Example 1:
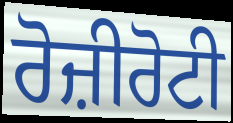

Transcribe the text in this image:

ਰੋਜ਼ੀਰੋਟੀ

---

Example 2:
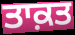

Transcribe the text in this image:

ਤਾਕ਼ਤ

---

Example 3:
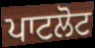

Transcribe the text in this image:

ਪਾਟਲੋਟ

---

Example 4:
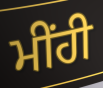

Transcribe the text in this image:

ਮੀਂਹੀ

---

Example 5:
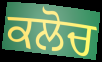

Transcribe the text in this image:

ਕਲੋਚ